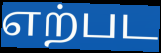
எற்பட